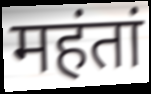
महंतां